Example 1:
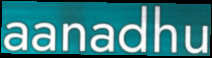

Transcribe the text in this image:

aanadhu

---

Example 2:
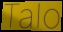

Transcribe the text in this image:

Talo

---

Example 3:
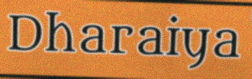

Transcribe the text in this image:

Dharaiya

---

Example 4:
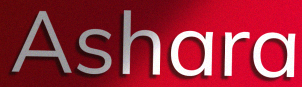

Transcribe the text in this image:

Ashara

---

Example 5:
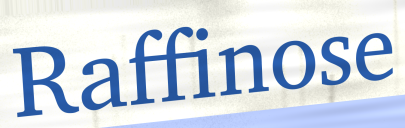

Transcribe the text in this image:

Raffinose